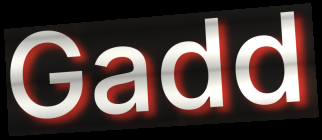
Gadd